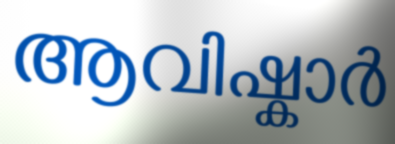
ആവിഷ്കാർ